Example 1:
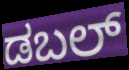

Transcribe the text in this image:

ಡಬಲ್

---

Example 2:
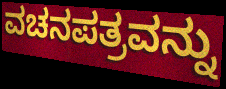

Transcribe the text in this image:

ವಚನಪತ್ರವನ್ನು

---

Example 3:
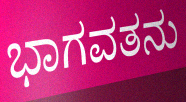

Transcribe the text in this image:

ಭಾಗವತನು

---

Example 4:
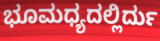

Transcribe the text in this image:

ಭೂಮಧ್ಯದಲ್ಲಿರ್ದು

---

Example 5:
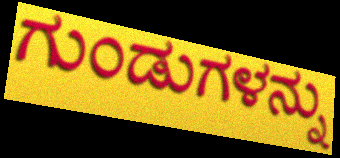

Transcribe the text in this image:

ಗುಂಡುಗಳನ್ನು